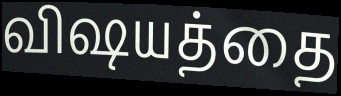
விஷயத்தை